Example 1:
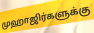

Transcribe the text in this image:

முஹாஜிர்களுக்கு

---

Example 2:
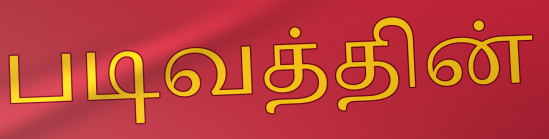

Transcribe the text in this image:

படிவத்தின்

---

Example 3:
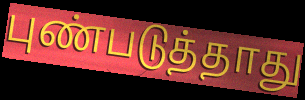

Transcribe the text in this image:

புண்படுத்தாது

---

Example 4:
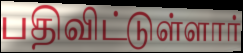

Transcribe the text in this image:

பதிவிட்டுள்ளார்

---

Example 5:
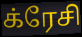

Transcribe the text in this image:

க்ரேசி